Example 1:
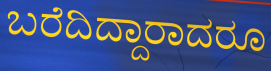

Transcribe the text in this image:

ಬರೆದಿದ್ದಾರಾದರೂ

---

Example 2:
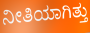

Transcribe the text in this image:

ನೀತಿಯಾಗಿತ್ತು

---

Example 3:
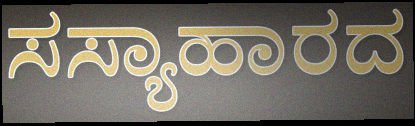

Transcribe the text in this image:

ಸಸ್ಯಾಹಾರದ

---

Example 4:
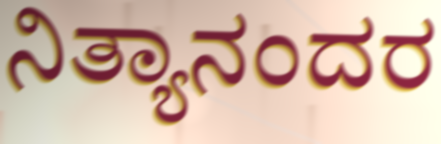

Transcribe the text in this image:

ನಿತ್ಯಾನಂದರ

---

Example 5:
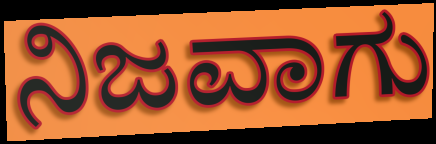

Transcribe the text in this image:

ನಿಜವಾಗು